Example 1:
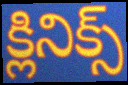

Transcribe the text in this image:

క్లినిక్స్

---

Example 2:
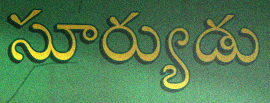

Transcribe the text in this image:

సూర్యుడు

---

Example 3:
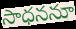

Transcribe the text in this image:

సాధననూ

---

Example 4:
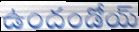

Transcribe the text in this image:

ఉందండోయ్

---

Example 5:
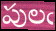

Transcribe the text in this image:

పులఁ